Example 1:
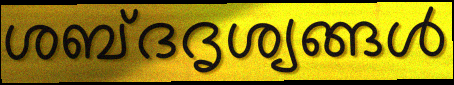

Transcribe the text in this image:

ശബ്ദദൃശ്യങ്ങൾ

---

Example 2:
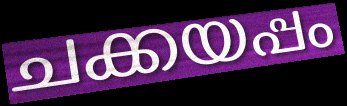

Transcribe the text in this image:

ചക്കയപ്പം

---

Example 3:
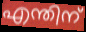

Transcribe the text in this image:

എന്തിന്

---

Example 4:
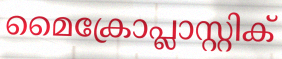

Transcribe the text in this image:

മൈക്രോപ്ലാസ്റ്റിക്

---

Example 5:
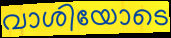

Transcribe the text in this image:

വാശിയോടെ